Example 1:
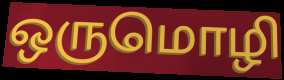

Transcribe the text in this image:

ஒருமொழி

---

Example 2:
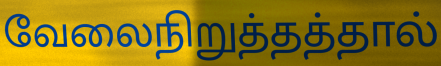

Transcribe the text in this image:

வேலைநிறுத்தத்தால்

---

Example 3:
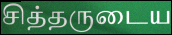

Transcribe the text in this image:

சித்தருடைய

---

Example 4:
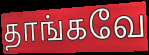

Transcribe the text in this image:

தாங்கவே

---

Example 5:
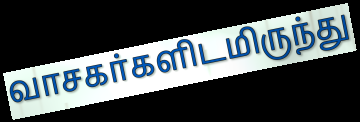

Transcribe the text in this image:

வாசகர்களிடமிருந்து